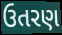
ઉતરણ